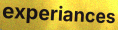
experiances